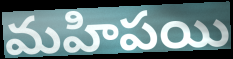
మహిపయి